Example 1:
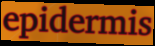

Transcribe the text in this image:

epidermis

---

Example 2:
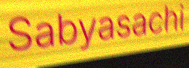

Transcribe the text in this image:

Sabyasachi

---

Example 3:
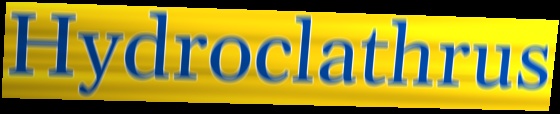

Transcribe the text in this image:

Hydroclathrus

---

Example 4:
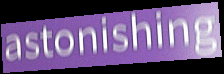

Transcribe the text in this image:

astonishing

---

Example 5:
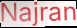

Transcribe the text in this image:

Najran